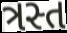
ત્રસ્ત